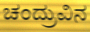
ಚಂದ್ರುವಿನ